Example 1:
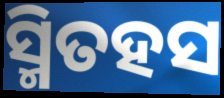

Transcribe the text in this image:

ସ୍ମିତହସ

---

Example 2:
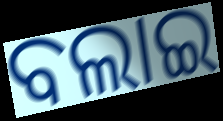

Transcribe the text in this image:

ବଲାଇ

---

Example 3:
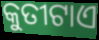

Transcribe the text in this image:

କୁତୀଟାଏ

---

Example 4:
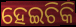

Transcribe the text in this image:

ହେଇଚିକି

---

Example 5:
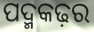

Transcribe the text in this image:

ପଦ୍ମକଢ଼ର